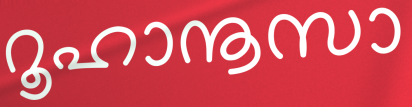
റൂഹാനൂസാ